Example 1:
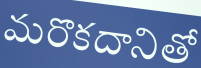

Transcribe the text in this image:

మరొకదానితో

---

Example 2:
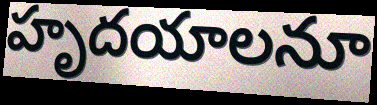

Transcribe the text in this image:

హృదయాలనూ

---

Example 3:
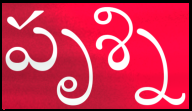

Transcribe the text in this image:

పృశ్ని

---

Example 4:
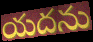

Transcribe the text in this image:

యదను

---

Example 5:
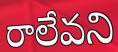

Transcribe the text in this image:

రాలేవని